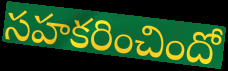
సహకరించిందో